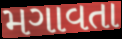
મગાવતા